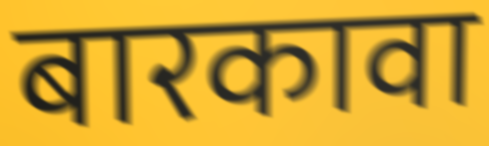
बारकावा